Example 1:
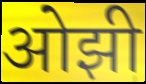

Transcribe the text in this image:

ओझी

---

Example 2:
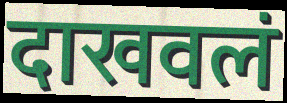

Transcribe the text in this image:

दाखवलं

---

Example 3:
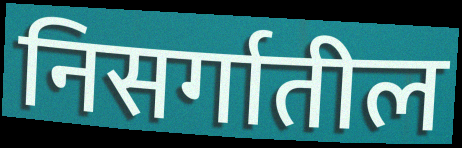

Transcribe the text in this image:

निसर्गातील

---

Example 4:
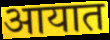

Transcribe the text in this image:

आयात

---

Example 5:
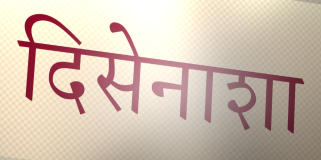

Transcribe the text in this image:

दिसेनाशा